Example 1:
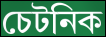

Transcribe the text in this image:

চেটনিক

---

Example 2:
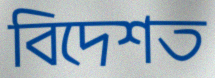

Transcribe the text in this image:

বিদেশত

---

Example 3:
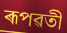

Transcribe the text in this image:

ৰূপৱতী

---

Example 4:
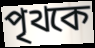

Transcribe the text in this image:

পৃথকে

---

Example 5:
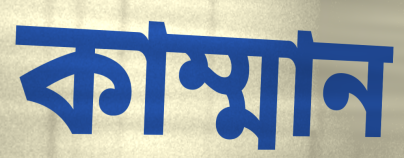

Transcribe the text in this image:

কাম্মান